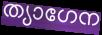
ത്യാഗേന